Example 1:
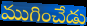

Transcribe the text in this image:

ముగించేడు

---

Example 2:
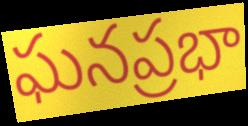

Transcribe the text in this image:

ఘనప్రభా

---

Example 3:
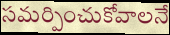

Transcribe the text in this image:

సమర్పించుకోవాలనే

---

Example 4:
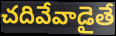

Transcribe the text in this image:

చదివేవాడైతే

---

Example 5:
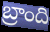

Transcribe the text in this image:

బ్రాంది